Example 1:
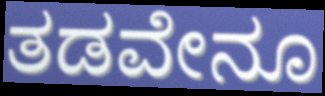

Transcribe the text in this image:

ತಡವೇನೂ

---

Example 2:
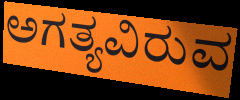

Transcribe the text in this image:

ಅಗತ್ಯವಿರುವ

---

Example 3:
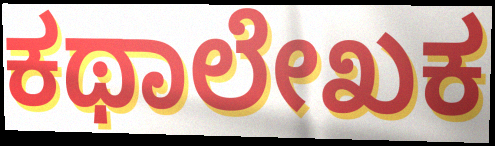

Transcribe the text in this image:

ಕಥಾಲೇಖಕ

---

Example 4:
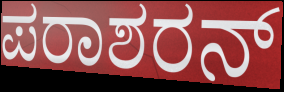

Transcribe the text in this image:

ಪರಾಶರನ್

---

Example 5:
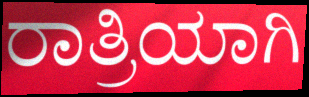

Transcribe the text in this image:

ರಾತ್ರಿಯಾಗಿ